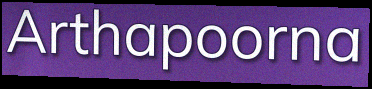
Arthapoorna